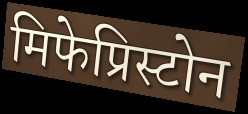
मिफेप्रिस्टोन